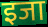
इजा